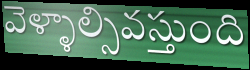
వెళ్ళాల్సివస్తుంది